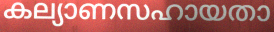
കല്യാണസഹായതാ